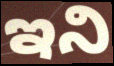
ఇని